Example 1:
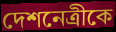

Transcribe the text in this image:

দেশনেত্রীকে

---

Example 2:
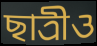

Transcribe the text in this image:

ছাত্রীও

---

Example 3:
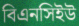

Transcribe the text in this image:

বিএনসিইউ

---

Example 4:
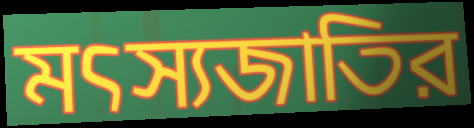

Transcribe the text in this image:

মৎস্যজাতির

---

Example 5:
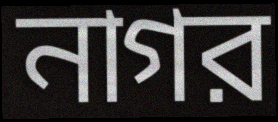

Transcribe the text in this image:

নাগর